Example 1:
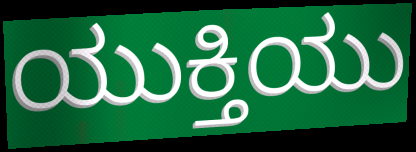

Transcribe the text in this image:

ಯುಕ್ತಿಯು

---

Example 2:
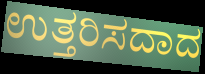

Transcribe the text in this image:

ಉತ್ತರಿಸದಾದ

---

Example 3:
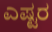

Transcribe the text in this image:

ಎಷ್ಟರ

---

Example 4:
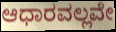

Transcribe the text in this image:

ಆಧಾರವಲ್ಲವೇ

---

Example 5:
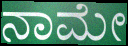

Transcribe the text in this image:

ನಾಮೇ